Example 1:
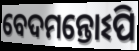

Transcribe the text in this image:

ବେଦମନ୍ତୋଽପି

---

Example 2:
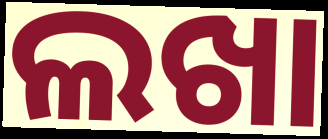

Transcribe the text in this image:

ଲଖା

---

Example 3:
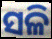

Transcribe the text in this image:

ସଳି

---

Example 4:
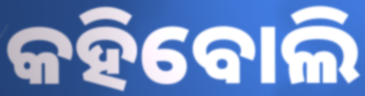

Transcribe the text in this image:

କହିବୋଲି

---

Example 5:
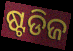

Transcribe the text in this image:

ଷ୍ଟଡିଜ